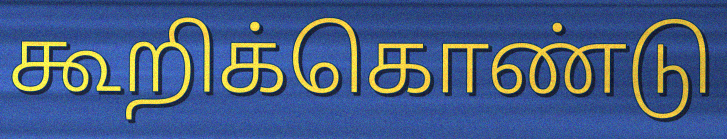
கூறிக்கொண்டு